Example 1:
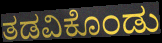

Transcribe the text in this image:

ತಡವಿಕೊಂಡು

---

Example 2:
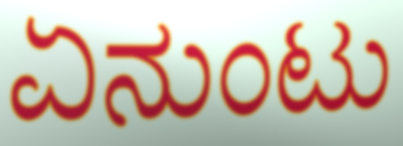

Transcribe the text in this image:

ಏನುಂಟು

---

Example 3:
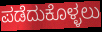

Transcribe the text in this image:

ಪಡೆದುಕೊಳ್ಳಲು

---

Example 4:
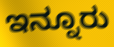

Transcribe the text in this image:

ಇನ್ನೂರು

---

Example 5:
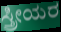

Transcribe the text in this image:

ಸ್ತ್ರೀಯರ